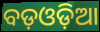
ବଡ଼ଓଡ଼ିଆ